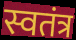
स्‍वतंत्र